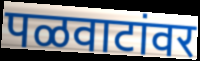
पळवाटांवर